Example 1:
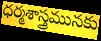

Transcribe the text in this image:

ధర్మశాస్త్రమునకు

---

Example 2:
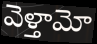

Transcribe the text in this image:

వెళ్తామో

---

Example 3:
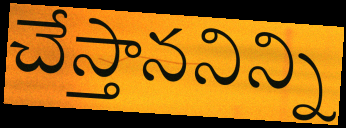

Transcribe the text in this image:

చేస్తాననిన్ని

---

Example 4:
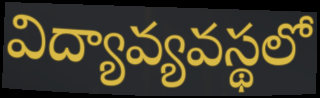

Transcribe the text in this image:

విద్యావ్యవస్థలో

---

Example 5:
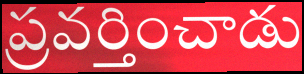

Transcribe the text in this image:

ప్రవర్తించాడు